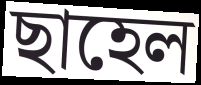
ছাহেল